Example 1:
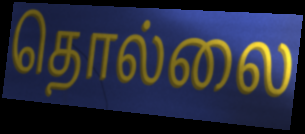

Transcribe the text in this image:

தொல்லை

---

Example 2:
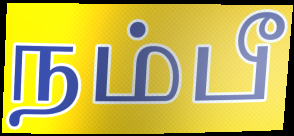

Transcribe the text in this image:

நம்பீ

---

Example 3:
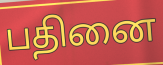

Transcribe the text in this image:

பதினை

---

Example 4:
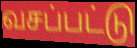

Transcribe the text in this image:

வசப்பட்டு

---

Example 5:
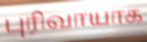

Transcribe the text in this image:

புரிவாயாக